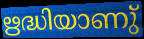
ഋദ്ധിയാണു്